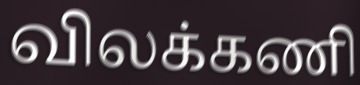
விலக்கணி